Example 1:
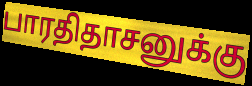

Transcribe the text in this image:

பாரதிதாசனுக்கு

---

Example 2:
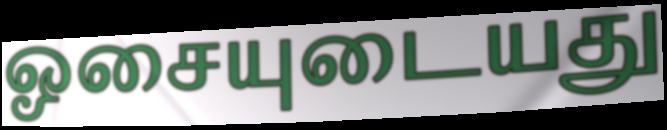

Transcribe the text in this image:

ஓசையுடையது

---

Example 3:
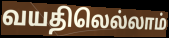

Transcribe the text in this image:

வயதிலெல்லாம்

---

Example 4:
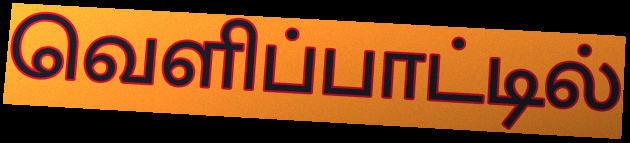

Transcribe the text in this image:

வெளிப்பாட்டில்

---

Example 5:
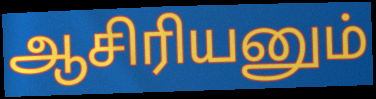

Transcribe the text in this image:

ஆசிரியனும்